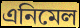
এনিমেল